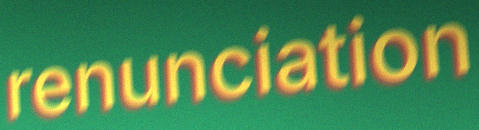
renunciation